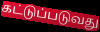
கட்டுப்படுவது